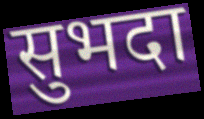
सुभदा